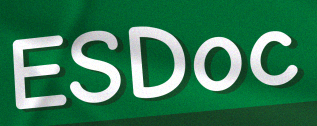
ESDoc